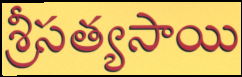
శ్రీసత్యసాయి